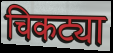
चिकट्या